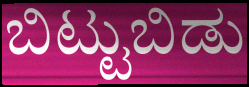
ಬಿಟ್ಟುಬಿಡು